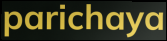
parichaya